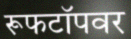
रूफटॉपवर